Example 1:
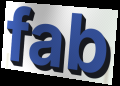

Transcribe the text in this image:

fab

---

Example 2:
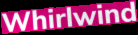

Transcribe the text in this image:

Whirlwind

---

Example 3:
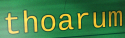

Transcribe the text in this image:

thoarum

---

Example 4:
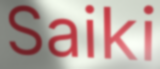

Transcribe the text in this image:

Saiki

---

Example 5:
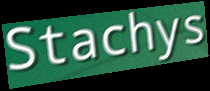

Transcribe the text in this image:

Stachys